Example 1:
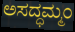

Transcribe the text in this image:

ಅಸದ್ಧಮ್ಮಂ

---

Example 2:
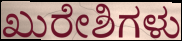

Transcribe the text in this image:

ಖುರೇಶಿಗಳು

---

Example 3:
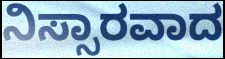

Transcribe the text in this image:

ನಿಸ್ಸಾರವಾದ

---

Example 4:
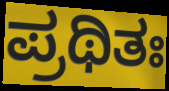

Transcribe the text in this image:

ಪ್ರಥಿತಃ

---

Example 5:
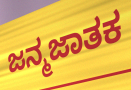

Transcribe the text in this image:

ಜನ್ಮಜಾತಕ